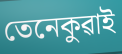
তেনেকুৱাই